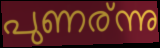
പുണര്ന്നു